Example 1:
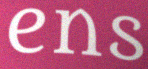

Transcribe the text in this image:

ens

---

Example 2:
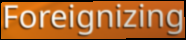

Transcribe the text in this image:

Foreignizing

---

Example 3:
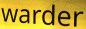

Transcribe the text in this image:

warder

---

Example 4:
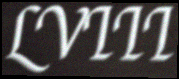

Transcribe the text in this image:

LVIII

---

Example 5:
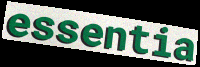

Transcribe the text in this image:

essentia